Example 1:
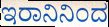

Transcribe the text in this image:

ಇರಾನಿನಿಂದ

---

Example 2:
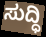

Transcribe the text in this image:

ಸುದ್ಧಿ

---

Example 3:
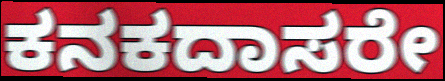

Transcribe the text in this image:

ಕನಕದಾಸರೇ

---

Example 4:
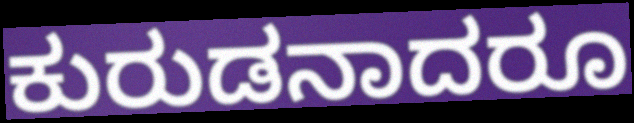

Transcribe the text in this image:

ಕುರುಡನಾದರೂ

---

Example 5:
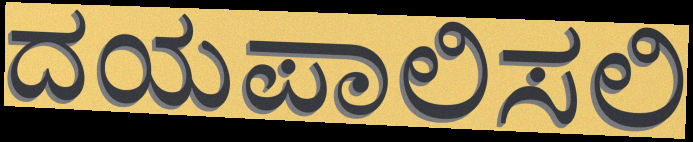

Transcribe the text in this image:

ದಯಪಾಲಿಸಲಿ